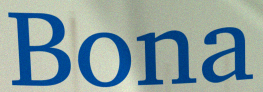
Bona